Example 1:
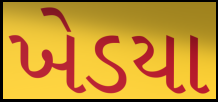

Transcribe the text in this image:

ખેડયા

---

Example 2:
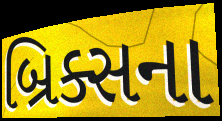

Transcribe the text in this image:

બ્રિક્સના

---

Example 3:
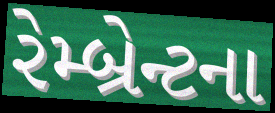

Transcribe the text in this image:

રેમ્બ્રેન્ટના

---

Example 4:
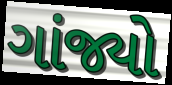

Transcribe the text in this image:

ગાંજ્યો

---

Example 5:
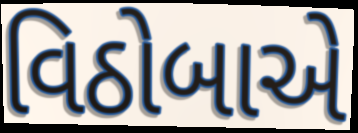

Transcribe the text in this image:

વિઠોબાએ